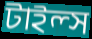
টাইল্স